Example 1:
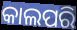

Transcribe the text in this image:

କାଲପରି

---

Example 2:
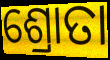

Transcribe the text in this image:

ଶ୍ରୋତା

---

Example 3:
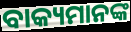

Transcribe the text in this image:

ବାକ୍ୟମାନଙ୍କ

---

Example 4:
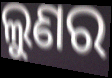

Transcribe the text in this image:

ଲୁଣର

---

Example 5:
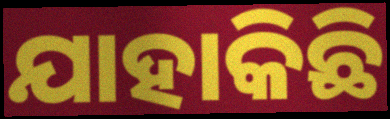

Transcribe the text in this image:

ଯାହାକିଛି